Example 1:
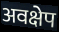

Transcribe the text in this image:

अवक्षेप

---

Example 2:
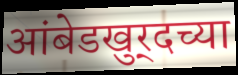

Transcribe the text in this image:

आंबेडखुर्दच्या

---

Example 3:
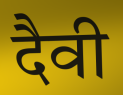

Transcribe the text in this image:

दैवी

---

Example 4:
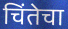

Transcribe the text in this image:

चिंतेचा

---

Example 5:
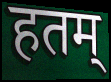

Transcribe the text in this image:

हतम्